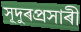
সূদুৰপ্ৰসাৰী